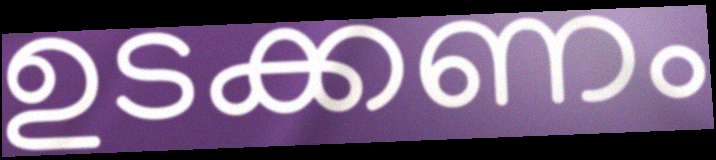
ഉടക്കണം